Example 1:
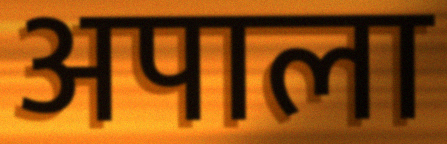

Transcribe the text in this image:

अपाला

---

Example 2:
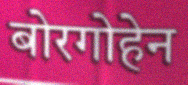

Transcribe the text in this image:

बोरगोहेन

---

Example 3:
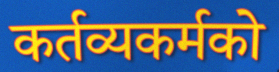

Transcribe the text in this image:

कर्तव्यकर्मको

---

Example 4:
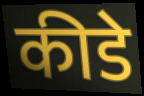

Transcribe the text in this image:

कीडे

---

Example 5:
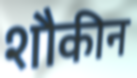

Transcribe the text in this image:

शौकीन